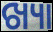
ଖ୍ୟା